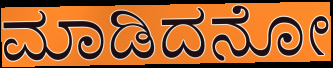
ಮಾಡಿದನೋ